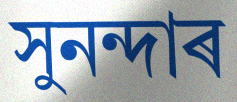
সুনন্দাৰ